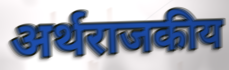
अर्थराजकीय